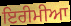
ਇਰੀਮੀਆ